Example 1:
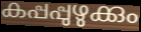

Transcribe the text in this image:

കപ്പപ്പുഴുക്കും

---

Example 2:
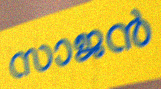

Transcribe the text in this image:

സാജൻ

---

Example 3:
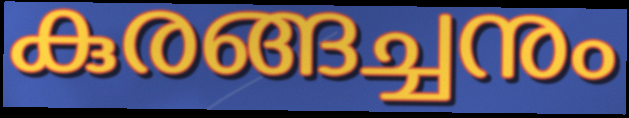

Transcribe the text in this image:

കുരങ്ങച്ചനും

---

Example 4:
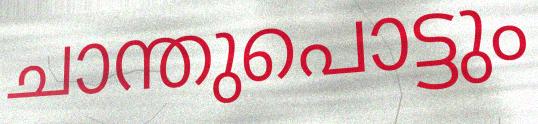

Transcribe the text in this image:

ചാന്തുപൊട്ടും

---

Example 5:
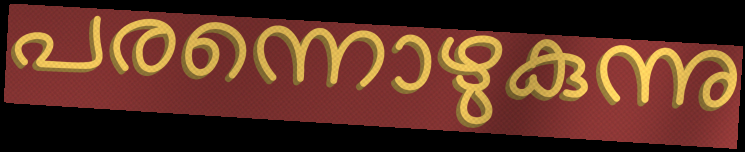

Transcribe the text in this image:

പരന്നൊഴുകുന്നു